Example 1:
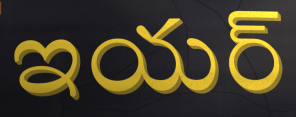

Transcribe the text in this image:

ఇయర్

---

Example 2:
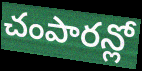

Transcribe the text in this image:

చంపారన్లో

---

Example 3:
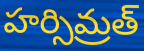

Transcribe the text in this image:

హర్సిమ్రత్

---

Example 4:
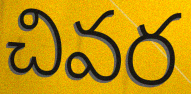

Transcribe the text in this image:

చివర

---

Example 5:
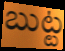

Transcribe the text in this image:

బుట్ట